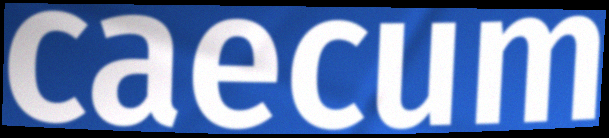
caecum